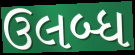
ઉલબ્ધ